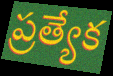
ప్రత్యేక